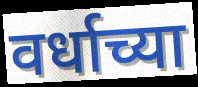
वर्धाच्या